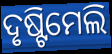
ଦୃଷ୍ଟିମେଲି